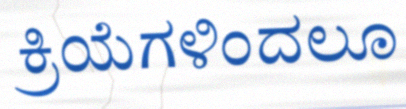
ಕ್ರಿಯೆಗಳಿಂದಲೂ